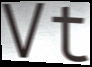
Vt